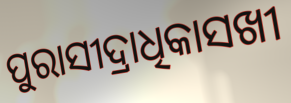
ପୁରାସୀଦ୍ରାଧିକାସଖୀ